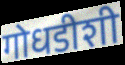
गोधडीशी